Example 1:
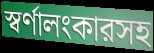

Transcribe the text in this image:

স্বর্ণালংকারসহ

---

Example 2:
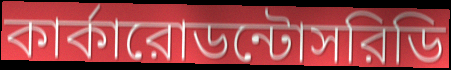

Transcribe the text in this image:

কার্কারোডন্টোসরিডি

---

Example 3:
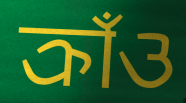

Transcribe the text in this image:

ক্রাঁও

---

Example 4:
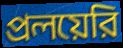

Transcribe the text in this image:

প্রলয়েরি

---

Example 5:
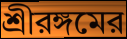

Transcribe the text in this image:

শ্রীরঙ্গমের